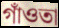
গাঁওতা